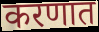
करणात